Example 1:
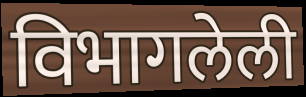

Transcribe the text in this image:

विभागलेली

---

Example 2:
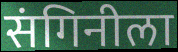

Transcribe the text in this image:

संगिनीला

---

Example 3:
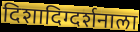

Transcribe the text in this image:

दिशादिग्दर्शनाला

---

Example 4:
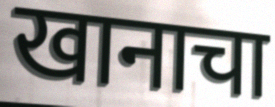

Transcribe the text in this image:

खानाचा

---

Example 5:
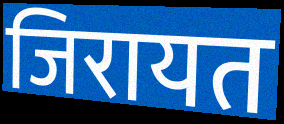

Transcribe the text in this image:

जिरायत